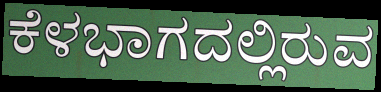
ಕೆಳಭಾಗದಲ್ಲಿರುವ